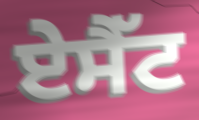
ਏਸੈੱਟ